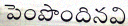
పెంపొందినవి